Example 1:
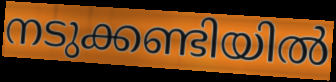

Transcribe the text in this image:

നടുക്കണ്ടിയിൽ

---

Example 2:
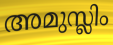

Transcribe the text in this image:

അമുസ്ലിം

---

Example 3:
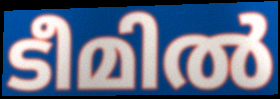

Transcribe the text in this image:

ടീമിൽ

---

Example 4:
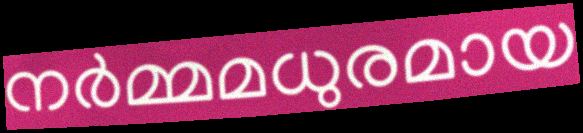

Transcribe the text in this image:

നർമ്മമധുരമായ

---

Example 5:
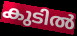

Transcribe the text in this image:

കുടിൽ